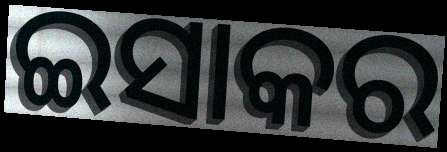
ଇସାକର